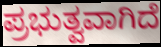
ಪ್ರಭುತ್ವವಾಗಿದೆ